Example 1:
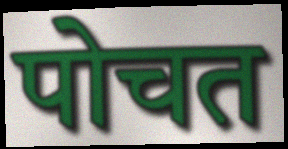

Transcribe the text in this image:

पोचत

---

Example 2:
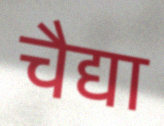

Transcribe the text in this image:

चैद्या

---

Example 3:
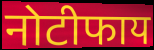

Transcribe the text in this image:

नोटीफाय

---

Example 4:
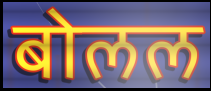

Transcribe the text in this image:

बोलल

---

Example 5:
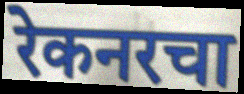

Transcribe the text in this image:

रेकनरचा